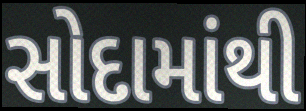
સોદામાંથી